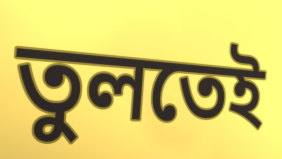
তুলতেই